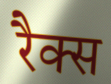
रैक्स